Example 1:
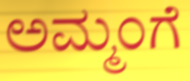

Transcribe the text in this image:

ಅಮ್ಮಂಗೆ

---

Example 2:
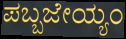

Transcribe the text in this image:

ಪಬ್ಬಜೇಯ್ಯಂ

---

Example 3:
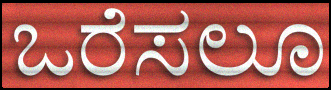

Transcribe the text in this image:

ಒರೆಸಲೂ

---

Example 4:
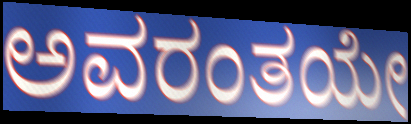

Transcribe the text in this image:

ಅವರಂತಯೇ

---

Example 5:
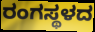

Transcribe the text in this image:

ರಂಗಸ್ಥಳದ